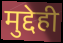
मुद्देही